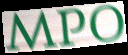
MPO